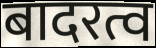
बादरत्व